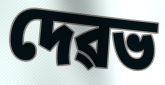
দেৱভ